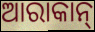
ଆରାକାନ୍